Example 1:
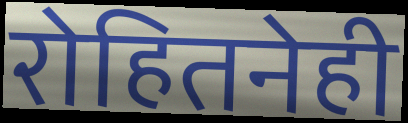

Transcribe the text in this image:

रोहितनेही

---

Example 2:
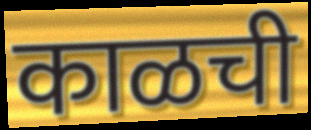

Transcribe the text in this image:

काळची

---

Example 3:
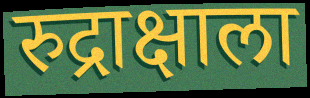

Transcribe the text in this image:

रुद्राक्षाला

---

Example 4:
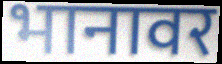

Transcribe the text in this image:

भानावर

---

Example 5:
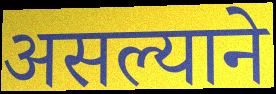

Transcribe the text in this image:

असल्‍याने